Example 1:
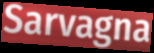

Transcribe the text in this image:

Sarvagna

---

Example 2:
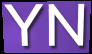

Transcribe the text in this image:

YN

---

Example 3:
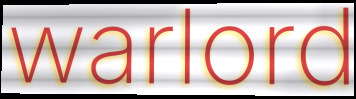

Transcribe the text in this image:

warlord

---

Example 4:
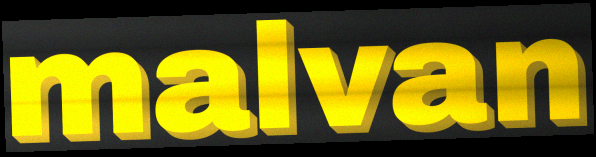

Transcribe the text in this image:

malvan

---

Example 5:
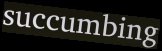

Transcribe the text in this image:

succumbing